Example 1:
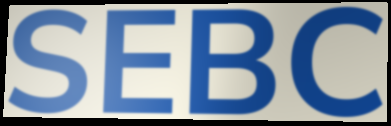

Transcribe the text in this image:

SEBC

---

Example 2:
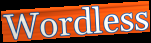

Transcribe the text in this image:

Wordless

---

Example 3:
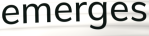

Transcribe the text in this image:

emerges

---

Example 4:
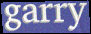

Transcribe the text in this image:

garry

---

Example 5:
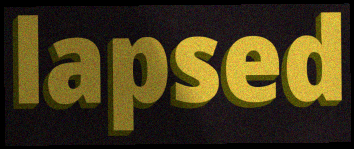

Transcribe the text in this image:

lapsed